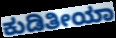
ಕುಡಿತೀಯಾ